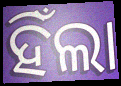
ହିଁଲା